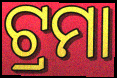
ଟ୍ରମା